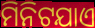
ମିନିଟଯାଏ